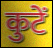
कुटें